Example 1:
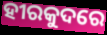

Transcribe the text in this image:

ହୀରକୁଦରେ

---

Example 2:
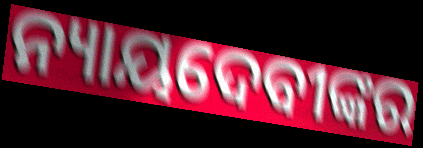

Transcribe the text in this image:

ନ୍ୟାୟଦେବୀଙ୍କର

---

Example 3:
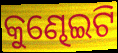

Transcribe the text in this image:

କୁଣ୍ଢେଇଟି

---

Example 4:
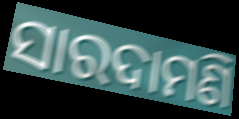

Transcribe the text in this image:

ସାରଦାମଣି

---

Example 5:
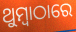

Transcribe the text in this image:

ଥୁମ୍ବାଠାରେ